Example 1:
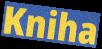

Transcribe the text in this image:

Kniha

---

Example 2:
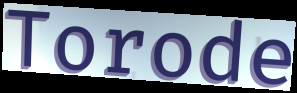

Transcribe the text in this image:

Torode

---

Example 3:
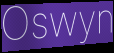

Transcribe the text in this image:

Oswyn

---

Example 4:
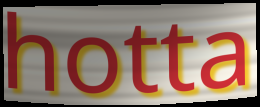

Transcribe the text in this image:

hotta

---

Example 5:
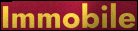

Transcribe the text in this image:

Immobile